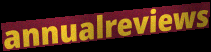
annualreviews